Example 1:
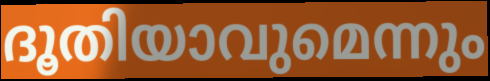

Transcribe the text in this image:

ദൂതിയാവുമെന്നും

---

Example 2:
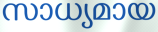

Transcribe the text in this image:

സാധ്യമായ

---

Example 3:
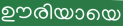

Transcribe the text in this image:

ഊരിയായെ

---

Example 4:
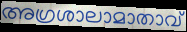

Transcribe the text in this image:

അഗ്രശാലാമാതാവ്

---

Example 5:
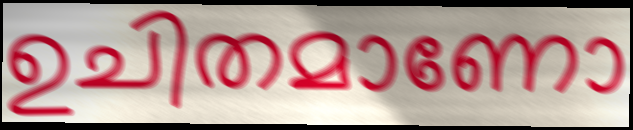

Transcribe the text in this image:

ഉചിതമാണോ